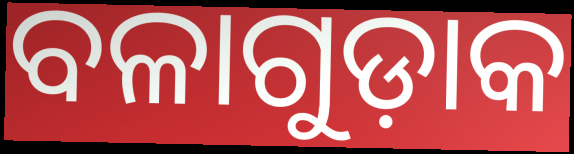
ବଳାଗୁଡ଼ାକ